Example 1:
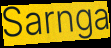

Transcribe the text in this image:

Sarnga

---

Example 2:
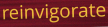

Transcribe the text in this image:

reinvigorate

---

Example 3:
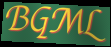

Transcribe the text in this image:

BGML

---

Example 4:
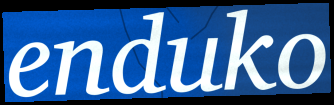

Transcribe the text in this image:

enduko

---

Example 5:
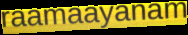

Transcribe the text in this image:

raamaayanam